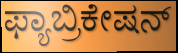
ಫ್ಯಾಬ್ರಿಕೇಷನ್